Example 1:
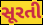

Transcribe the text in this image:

સૂરતી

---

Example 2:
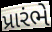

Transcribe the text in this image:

પ્રારંભે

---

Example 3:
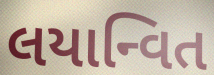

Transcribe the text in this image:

લયાન્વિત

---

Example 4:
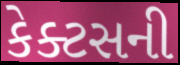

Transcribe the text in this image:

કેક્ટસની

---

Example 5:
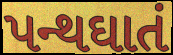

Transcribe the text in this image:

પન્થઘાતં